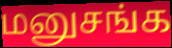
மனுசங்க